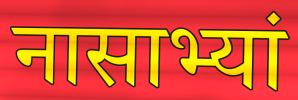
नासाभ्यां